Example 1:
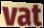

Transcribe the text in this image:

vat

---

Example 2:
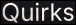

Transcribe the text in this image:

Quirks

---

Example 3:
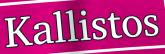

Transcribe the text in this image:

Kallistos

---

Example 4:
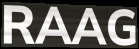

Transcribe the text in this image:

RAAG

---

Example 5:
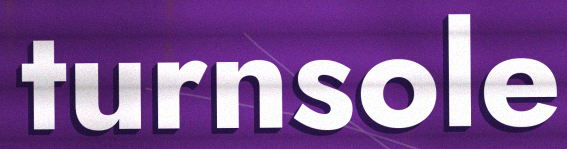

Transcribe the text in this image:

turnsole